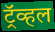
ट्रॅव्हल